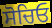
ਸੋਚਿਓ